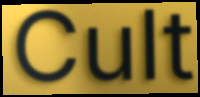
Cult